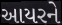
આયરને